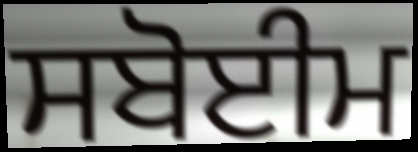
ਸਬੋਈਮ